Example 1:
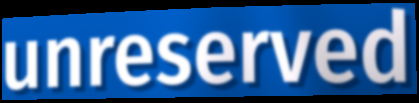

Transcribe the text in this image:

unreserved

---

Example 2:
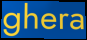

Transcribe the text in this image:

ghera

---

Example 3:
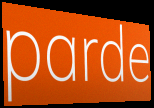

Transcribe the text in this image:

parde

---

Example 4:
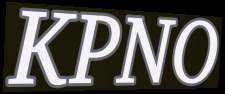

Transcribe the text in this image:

KPNO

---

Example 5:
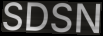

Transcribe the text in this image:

SDSN